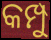
କମ୍ପୁ